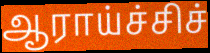
ஆராய்ச்சிச்